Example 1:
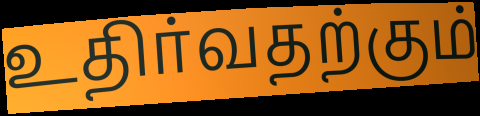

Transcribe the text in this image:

உதிர்வதற்கும்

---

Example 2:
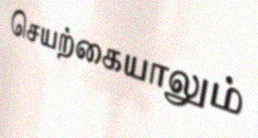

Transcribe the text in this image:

செயற்கையாலும்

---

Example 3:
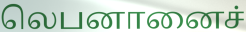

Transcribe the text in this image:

லெபனானைச்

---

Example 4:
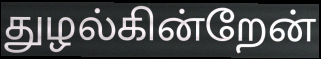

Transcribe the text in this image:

துழல்கின்றேன்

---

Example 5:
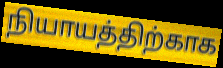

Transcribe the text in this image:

நியாயத்திற்காக